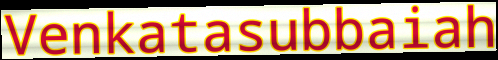
Venkatasubbaiah